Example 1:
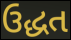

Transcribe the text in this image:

ઉદ્ધત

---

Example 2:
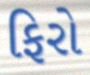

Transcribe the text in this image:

ફિરો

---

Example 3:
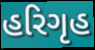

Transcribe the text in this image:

હરિગૃહ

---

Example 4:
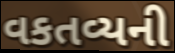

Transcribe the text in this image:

વકતવ્યની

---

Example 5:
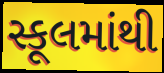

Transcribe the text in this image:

સ્કૂલમાંથી